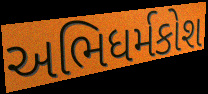
અભિધર્મકોશ